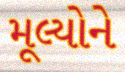
મૂલ્યોને